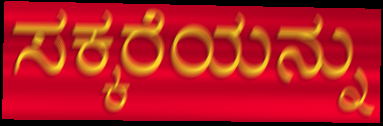
ಸಕ್ಕರೆಯನ್ನು